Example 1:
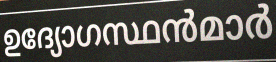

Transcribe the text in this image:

ഉദ്യോഗസ്ഥൻമാർ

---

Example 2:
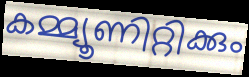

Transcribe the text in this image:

കമ്മ്യൂണിറ്റിക്കും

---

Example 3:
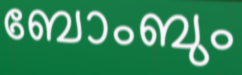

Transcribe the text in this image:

ബോംബും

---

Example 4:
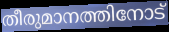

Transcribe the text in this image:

തീരുമാനത്തിനോട്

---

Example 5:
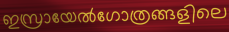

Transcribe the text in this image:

ഇസ്രായേൽഗോത്രങ്ങളിലെ